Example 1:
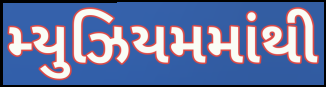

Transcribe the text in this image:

મ્યુઝિયમમાંથી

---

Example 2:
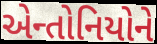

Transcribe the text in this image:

એન્તોનિયોને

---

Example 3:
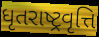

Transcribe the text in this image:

ધૃતરાષ્ટ્રવૃત્તિ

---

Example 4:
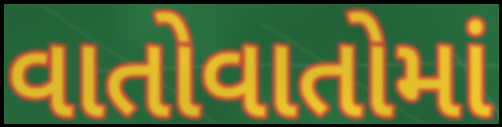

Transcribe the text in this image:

વાતોવાતોમાં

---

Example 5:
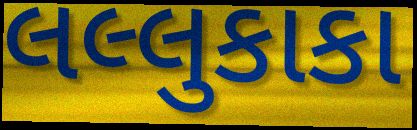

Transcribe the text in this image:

લલ્લુકાકા